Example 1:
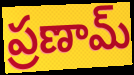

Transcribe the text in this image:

ప్రణామ్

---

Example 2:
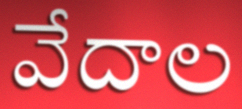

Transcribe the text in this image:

వేదాల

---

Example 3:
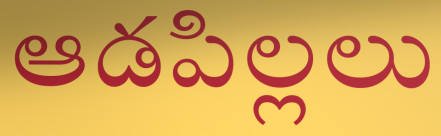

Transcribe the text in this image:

ఆడపిల్లలు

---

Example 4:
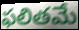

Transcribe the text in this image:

ఫలితమే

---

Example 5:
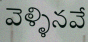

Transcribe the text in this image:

వెళ్ళినవే